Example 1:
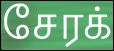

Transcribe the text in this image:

சேரக்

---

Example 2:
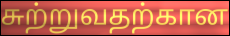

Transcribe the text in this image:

சுற்றுவதற்கான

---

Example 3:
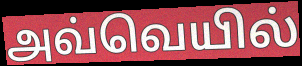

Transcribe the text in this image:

அவ்வெயில்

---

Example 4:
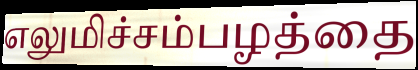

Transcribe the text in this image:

எலுமிச்சம்பழத்தை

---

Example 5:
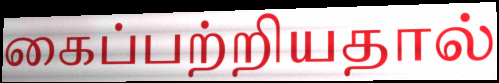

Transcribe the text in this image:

கைப்பற்றியதால்